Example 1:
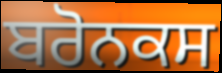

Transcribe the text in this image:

ਬਰੋਨਕਸ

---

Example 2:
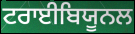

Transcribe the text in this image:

ਟਰਾਈਬਿਯੂਨਲ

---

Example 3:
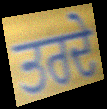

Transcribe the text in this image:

ਤਰਦੇ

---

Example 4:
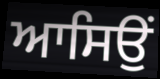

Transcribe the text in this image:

ਆਸਿਉਂ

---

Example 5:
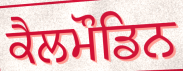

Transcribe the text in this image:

ਕੈਲਮੌਡਿਨ